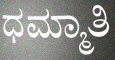
ಧಮ್ಮಾತಿ